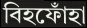
বিহফোঁহা